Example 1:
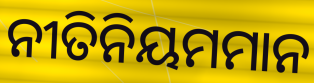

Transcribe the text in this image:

ନୀତିନିୟମମାନ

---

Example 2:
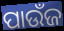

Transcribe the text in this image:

ପାଉଁଜ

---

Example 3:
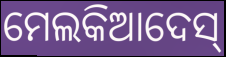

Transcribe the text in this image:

ମେଲକିଆଦେସ୍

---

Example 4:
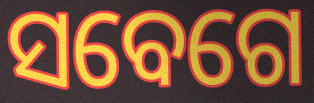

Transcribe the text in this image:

ସବେଗେ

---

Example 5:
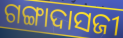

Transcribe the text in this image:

ଗଙ୍ଗାଦାସଜୀ